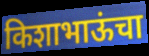
किशाभाऊंचा